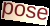
pose